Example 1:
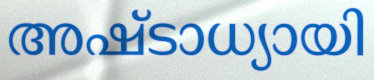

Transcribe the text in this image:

അഷ്ടാധ്യായി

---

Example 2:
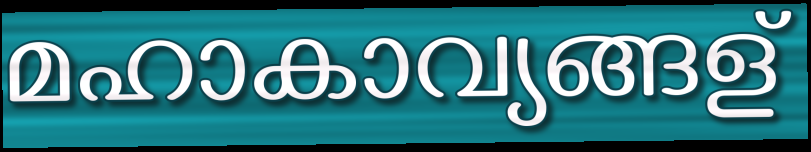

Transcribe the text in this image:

മഹാകാവ്യങ്ങള്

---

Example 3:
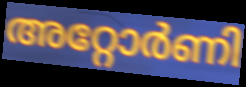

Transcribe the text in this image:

അറ്റോർണി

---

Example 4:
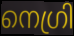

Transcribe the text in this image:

നെഗ്രി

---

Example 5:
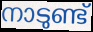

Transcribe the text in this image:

നാടുണ്ട്